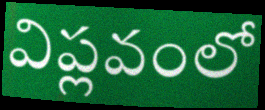
విప్లవంలో